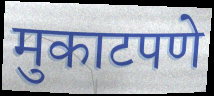
मुकाटपणे